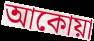
আকোয়া